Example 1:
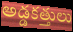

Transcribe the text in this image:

అడ్డకత్తులు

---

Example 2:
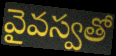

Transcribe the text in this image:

వైవస్వతో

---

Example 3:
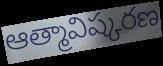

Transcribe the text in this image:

ఆత్మావిష్కరణ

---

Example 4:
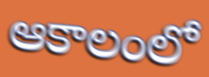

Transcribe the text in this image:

ఆకాలంలో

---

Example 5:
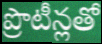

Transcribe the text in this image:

ప్రొటీన్లతో